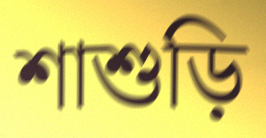
শাশুড়ি